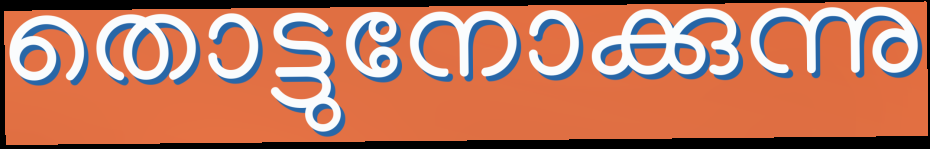
തൊട്ടുനോക്കുന്നു